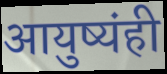
आयुष्यंही